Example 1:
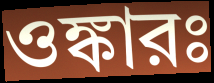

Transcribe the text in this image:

ওঙ্কারঃ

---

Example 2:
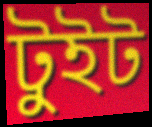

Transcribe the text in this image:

টুইট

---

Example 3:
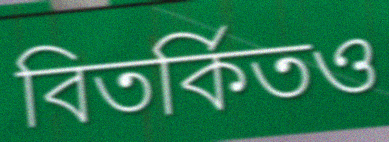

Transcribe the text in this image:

বিতর্কিতও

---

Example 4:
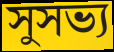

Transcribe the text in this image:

সুসভ্য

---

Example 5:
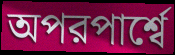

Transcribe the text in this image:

অপরপার্শ্বে